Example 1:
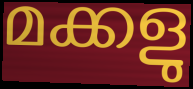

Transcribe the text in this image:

മക്കളു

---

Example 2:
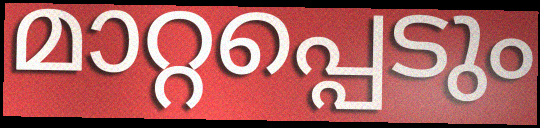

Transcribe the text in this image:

മാറ്റപ്പെടും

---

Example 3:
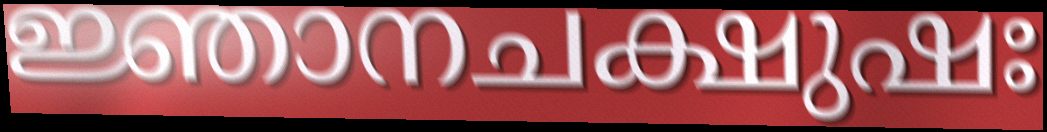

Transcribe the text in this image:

ജ്ഞാനചക്ഷുഷഃ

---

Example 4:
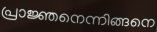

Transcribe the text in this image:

പ്രാജ്ഞനെന്നിങ്ങനെ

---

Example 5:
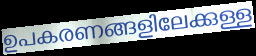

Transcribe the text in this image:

ഉപകരണങ്ങളിലേക്കുള്ള